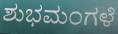
ಶುಭಮಂಗಳೆ